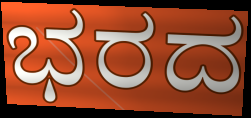
ಭರದ